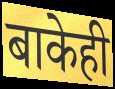
बाकेही